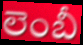
లెంబీ